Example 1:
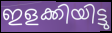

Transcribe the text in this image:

ഇളക്കിയിട്ടു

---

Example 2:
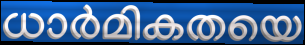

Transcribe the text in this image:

ധാർമികതയെ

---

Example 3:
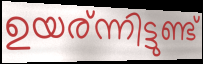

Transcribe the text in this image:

ഉയര്ന്നിട്ടുണ്ട്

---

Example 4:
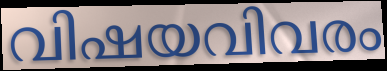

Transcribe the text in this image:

വിഷയവിവരം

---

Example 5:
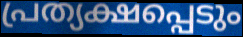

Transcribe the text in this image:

പ്രത്യക്ഷപ്പെടും